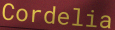
Cordelia